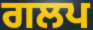
ਗਲਪ